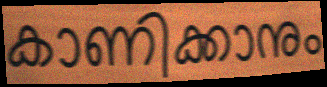
കാണിക്കാനും